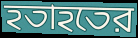
হতাহতের